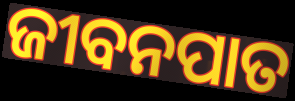
ଜୀବନପାତ